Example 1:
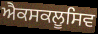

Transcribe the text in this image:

ਐਕਸਕਲੂਸਿਵ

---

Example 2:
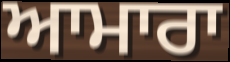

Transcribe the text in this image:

ਆਮਾਰਾ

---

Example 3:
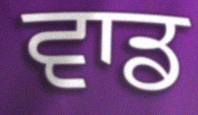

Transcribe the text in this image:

ਵਾਡ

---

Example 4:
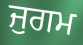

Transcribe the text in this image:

ਜੁਗਮ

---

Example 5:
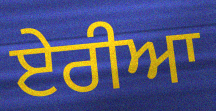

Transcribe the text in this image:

ਏਰੀਆ